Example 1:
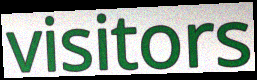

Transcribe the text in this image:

visitors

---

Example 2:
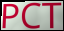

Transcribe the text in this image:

PCT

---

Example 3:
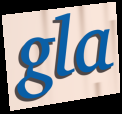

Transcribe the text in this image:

gla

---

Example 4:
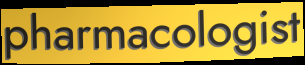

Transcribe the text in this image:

pharmacologist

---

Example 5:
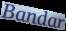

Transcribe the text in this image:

Bandar